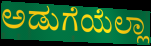
ಅಡುಗೆಯೆಲ್ಲಾ